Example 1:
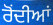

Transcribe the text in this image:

ਰੋਂਦੀਆਂ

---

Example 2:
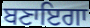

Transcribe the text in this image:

ਬਣਾਇਗਾ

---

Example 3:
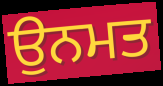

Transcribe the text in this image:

ਉਨਮਤ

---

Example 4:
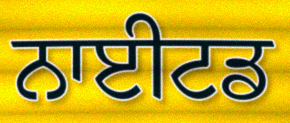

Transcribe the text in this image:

ਨਾਈਟਡ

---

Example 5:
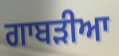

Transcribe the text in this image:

ਗਾਬੜੀਆ